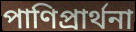
পাণিপ্রার্থনা